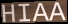
HIAA